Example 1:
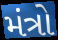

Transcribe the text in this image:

મંત્રો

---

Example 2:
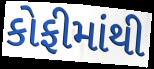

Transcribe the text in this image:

કોફીમાંથી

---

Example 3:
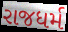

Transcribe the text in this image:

રાજધર્મ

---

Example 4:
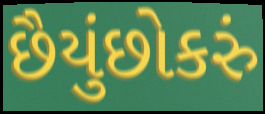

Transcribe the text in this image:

છૈયુંછોકરું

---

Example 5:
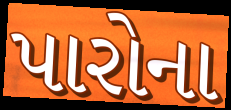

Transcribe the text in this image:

પારોના